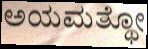
ಅಯಮತ್ಥೋ